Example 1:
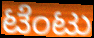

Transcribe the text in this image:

ಟೆಂಟು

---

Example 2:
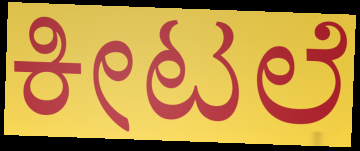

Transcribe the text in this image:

ಕೀಟಲೆ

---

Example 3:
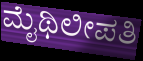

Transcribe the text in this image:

ಮೈಥಿಲೀಪತಿ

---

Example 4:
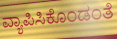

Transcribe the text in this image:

ವ್ಯಾಪಿಸಿಕೊಂಡಂತೆ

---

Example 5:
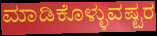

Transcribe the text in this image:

ಮಾಡಿಕೊಳ್ಳುವಷ್ಟರ